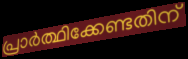
പ്രാർത്ഥിക്കേണ്ടതിന്